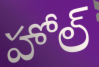
హోల్